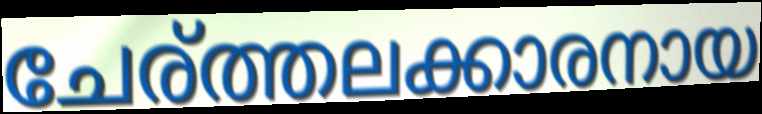
ചേര്ത്തലക്കാരനായ